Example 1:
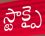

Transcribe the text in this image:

స్టాక్పై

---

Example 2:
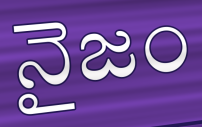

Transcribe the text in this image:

నైజం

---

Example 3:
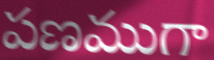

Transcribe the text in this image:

పణముగా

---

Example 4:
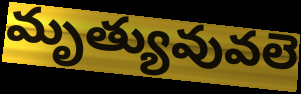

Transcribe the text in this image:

మృత్యువువలె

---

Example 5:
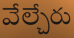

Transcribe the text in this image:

వేల్చేరు